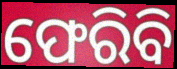
ଫେରିବି